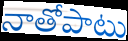
నాతోపాటు